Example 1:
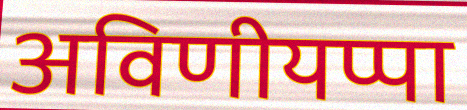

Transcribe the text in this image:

अविणीयप्पा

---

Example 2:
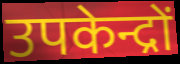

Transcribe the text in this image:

उपकेन्द्रों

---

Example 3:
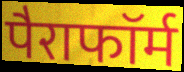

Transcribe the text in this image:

पैराफॉर्म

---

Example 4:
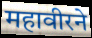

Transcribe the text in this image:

महावीरने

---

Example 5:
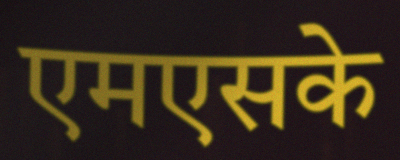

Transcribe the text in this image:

एमएसके